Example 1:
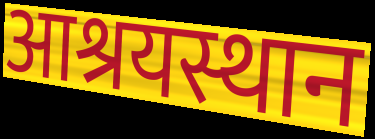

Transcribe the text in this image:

आश्रयस्थान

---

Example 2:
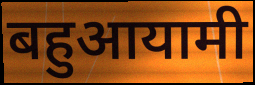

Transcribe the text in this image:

बहुआयामी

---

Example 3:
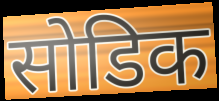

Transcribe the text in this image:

सोडिक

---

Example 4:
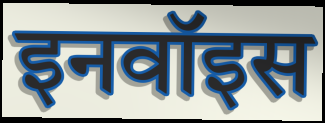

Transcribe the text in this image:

इनवॉइस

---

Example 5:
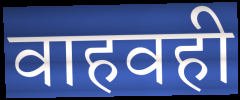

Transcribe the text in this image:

वाहवही